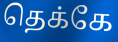
தெக்கே